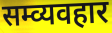
सम्व्यवहार